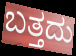
ಬತ್ತದು